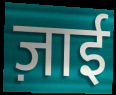
ज़ाई